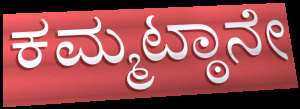
ಕಮ್ಮಟ್ಠಾನೇ